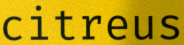
citreus